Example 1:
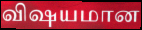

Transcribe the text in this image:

விஷயமான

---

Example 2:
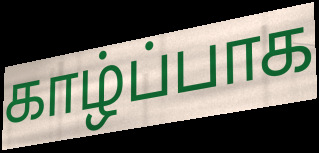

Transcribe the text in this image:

காழ்ப்பாக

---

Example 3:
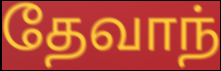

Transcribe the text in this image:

தேவாந்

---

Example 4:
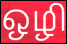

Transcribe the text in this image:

ஒழி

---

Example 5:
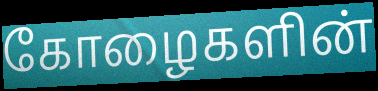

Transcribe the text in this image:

கோழைகளின்